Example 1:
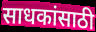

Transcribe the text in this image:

साधकांसाठी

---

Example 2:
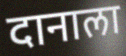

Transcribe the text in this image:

दानाला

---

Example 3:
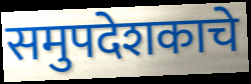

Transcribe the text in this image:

समुपदेशकाचे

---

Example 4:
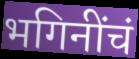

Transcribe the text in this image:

भगिनींचं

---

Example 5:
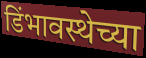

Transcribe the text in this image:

डिंभावस्थेच्या